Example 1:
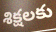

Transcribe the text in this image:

శిక్షలకు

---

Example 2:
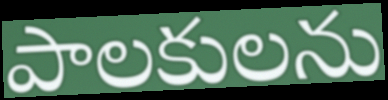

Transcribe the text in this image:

పాలకులను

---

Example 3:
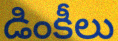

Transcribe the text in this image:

డింకీలు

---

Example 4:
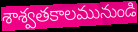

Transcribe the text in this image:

శాశ్వతకాలమునుండి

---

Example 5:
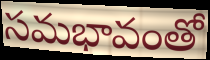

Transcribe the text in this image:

సమభావంతో